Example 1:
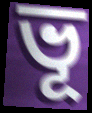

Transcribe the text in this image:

ভূ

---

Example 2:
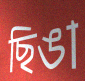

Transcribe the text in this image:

ছিঙা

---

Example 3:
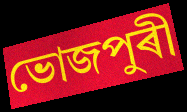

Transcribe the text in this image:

ভোজপুৰী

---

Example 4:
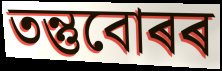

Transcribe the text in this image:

তন্তুবোৰৰ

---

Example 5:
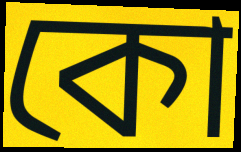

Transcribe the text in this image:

কো